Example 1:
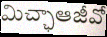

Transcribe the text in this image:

మిచ్ఛాఆజీవో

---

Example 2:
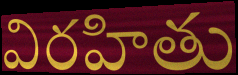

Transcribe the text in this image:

విరహితు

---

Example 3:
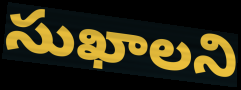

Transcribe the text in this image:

సుఖాలని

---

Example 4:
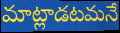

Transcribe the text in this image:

మాట్లాడటమనే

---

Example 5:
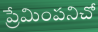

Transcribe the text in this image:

ప్రేమింపనిచో